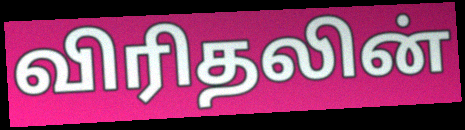
விரிதலின்